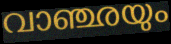
വാഞ്ഛയും